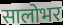
सालोभर